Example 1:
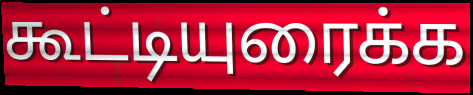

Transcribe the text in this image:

கூட்டியுரைக்க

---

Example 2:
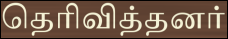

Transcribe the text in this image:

தெரிவித்தனர்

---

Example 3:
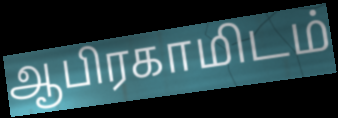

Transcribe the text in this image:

ஆபிரகாமிடம்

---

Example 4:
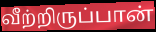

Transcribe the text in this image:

வீற்றிருப்பான்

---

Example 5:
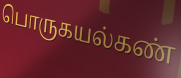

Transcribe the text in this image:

பொருகயல்கண்